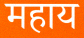
महाय